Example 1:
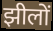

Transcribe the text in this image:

झीलों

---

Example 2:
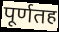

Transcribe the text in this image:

पूर्णतह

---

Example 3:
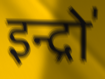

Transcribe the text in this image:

इन्द्रो॑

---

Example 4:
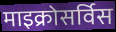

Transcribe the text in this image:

माइक्रोसर्विस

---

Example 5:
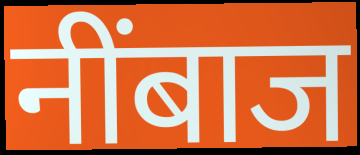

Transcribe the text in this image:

नींबाज